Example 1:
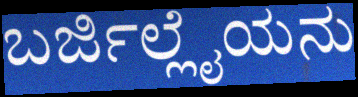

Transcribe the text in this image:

ಬರ್ಜಿಲ್ಲೈಯನು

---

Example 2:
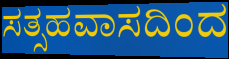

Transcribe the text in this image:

ಸತ್ಸಹವಾಸದಿಂದ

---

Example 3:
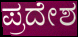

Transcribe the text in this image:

ಪ್ರದೇಶ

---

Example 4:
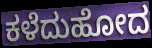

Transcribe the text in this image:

ಕಳೆದುಹೋದ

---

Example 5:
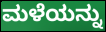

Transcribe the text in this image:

ಮಳೆಯನ್ನು